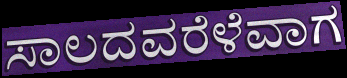
ಸಾಲದವರೆಳೆವಾಗ